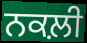
ਨਕਲ਼ੀ